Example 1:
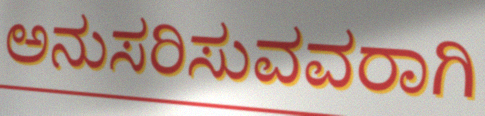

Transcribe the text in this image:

ಅನುಸರಿಸುವವರಾಗಿ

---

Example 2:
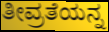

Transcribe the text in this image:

ತೀವ್ರತೆಯನ್ನ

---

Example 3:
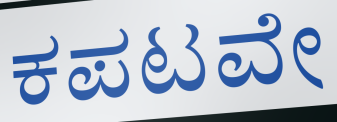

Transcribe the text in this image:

ಕಪಟವೇ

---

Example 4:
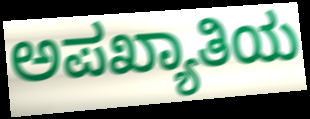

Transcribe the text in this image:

ಅಪಖ್ಯಾತಿಯ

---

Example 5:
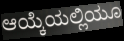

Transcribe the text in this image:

ಆಯ್ಕೆಯಲ್ಲಿಯೂ